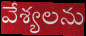
వేశ్యలను